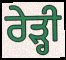
ਰੇੜ੍ਹੀ